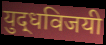
युद्धविजयी